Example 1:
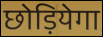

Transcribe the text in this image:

छोड़ियेगा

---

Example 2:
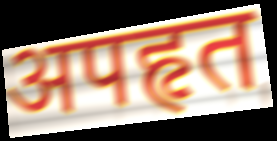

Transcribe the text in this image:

अपहृत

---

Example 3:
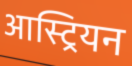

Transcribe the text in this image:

आस्ट्रियन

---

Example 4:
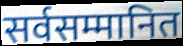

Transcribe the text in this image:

सर्वसम्मानित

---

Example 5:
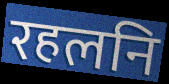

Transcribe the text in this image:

रहलनि